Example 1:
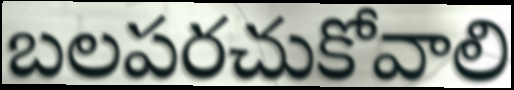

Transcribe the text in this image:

బలపరచుకోవాలి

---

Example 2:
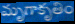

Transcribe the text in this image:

మృగాకృతిం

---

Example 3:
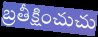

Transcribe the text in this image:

బ్రతీక్షించుచు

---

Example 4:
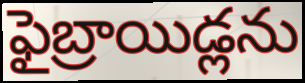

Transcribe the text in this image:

ఫైబ్రాయిడ్లను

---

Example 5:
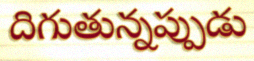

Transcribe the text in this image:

దిగుతున్నప్పుడు